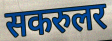
सकरुलर